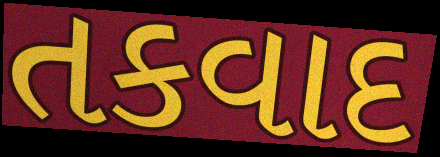
તકવાદ